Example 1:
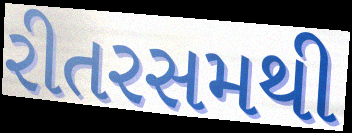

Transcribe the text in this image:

રીતરસમથી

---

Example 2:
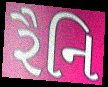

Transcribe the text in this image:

રૈનિ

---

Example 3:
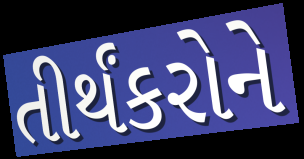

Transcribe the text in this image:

તીર્થંકરોને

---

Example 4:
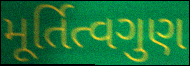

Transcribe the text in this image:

મૂર્તિત્વગુણ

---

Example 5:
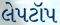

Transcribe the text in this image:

લેપટૉપ